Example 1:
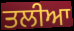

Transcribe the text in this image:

ਤਲੀਆ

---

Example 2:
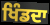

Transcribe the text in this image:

ਖਿੰਡਦਾ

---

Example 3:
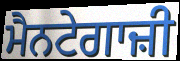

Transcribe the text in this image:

ਮੈਨਟੇਗਾਜ਼ੀ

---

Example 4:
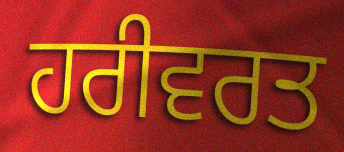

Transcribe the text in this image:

ਹਰੀਵਰਤ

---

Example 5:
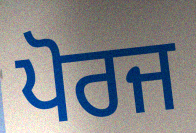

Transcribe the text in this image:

ਪੋਰਜ